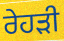
ਰੇਹੜੀ